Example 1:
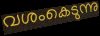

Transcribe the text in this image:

വശംകെടുന്നു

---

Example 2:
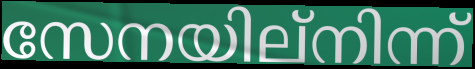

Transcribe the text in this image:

സേനയില്നിന്ന്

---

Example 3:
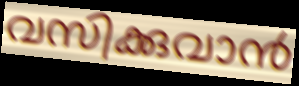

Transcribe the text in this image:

വസിക്കുവാൻ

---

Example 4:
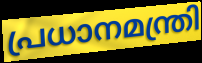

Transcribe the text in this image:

പ്രധാനമന്ത്രി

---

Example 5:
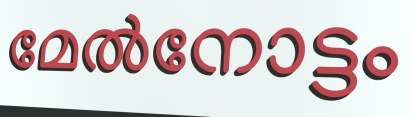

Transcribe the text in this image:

മേൽനോട്ടം